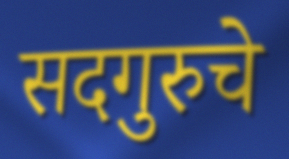
सदगुरुचे